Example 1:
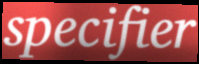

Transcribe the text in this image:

specifier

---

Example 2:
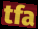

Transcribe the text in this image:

tfa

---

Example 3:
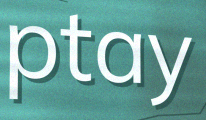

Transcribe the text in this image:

ptay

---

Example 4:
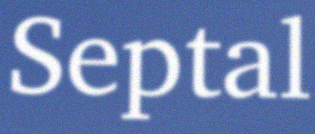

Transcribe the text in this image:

Septal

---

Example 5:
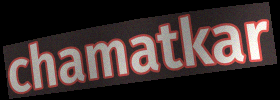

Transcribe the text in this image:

chamatkar